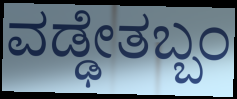
ವಡ್ಢೇತಬ್ಬಂ